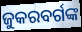
ଜୁକରବର୍ଗଙ୍କ